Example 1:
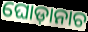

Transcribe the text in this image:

ଘୋଡ଼ାନାଚ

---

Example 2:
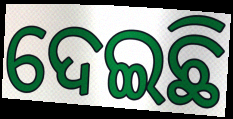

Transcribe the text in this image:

ଦେଇଛି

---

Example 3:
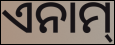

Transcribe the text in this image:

ଏନାମ୍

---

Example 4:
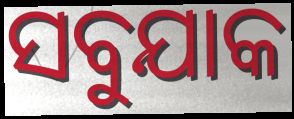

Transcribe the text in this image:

ସବୁଯାକ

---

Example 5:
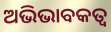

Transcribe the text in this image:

ଅଭିଭାବକତ୍ବ